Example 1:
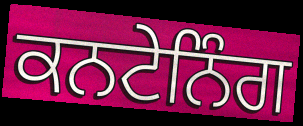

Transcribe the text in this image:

ਕਨਟੇਨਿੰਗ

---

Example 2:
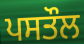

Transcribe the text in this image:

ਪਸਤੌਲ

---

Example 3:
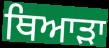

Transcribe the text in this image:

ਥਿਆੜਾ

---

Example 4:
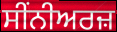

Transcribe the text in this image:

ਸੀਂਨੀਅਰਜ਼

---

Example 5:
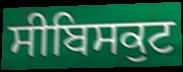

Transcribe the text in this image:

ਸੀਬਿਸਕੁਟ